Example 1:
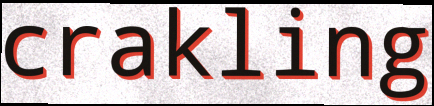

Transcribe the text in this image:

crakling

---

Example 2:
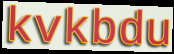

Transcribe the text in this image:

kvkbdu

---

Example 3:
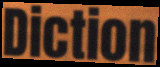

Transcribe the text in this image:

Diction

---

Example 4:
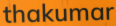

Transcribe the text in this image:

thakumar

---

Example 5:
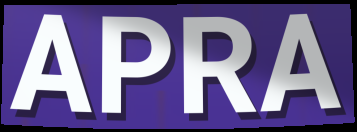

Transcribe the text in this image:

APRA